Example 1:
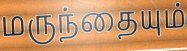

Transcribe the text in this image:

மருந்தையும்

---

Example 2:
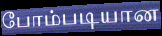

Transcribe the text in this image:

போம்படியான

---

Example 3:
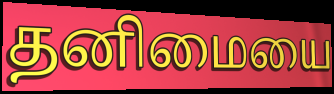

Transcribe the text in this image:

தனிமையை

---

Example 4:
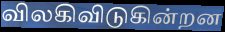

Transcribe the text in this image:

விலகிவிடுகின்றன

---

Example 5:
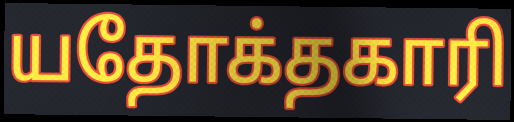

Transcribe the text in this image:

யதோக்தகாரி